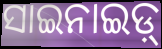
ସାଇନାଇଡ଼୍